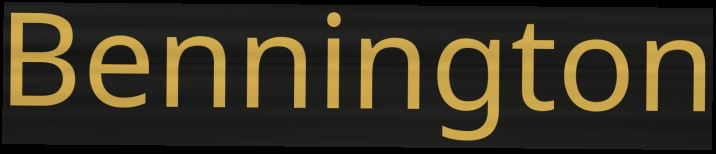
Bennington